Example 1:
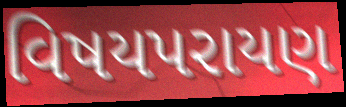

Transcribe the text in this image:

વિષયપરાયણ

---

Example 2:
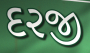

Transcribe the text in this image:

દરજી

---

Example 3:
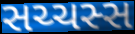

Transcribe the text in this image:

સચ્ચસ્સ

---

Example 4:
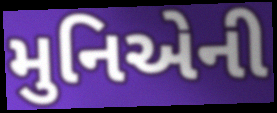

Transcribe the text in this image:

મુનિએની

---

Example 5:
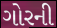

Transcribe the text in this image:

ગોરની